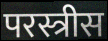
परस्त्रीस